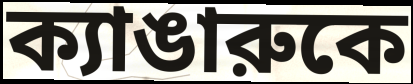
ক্যাঙারুকে